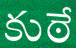
కుఠే